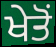
ਖੇਤੋਂ